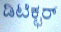
ಡಿಟೆಕ್ಟರ್